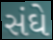
સંઘે